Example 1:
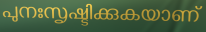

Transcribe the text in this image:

പുനഃസൃഷ്ടിക്കുകയാണ്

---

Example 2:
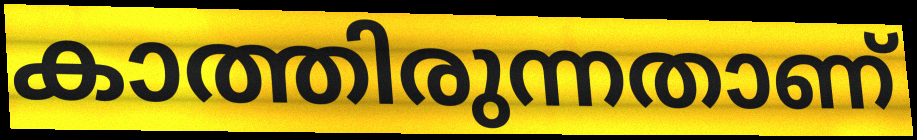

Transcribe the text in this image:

കാത്തിരുന്നതാണ്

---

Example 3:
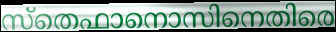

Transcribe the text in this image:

സ്തെഫാനൊസിനെതിരെ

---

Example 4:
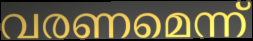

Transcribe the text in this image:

വരണമെന്ന്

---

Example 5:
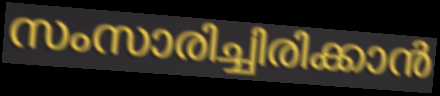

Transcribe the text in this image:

സംസാരിച്ചിരിക്കാൻ